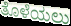
ತೊಳೆಯಲು